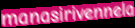
manasirivennela